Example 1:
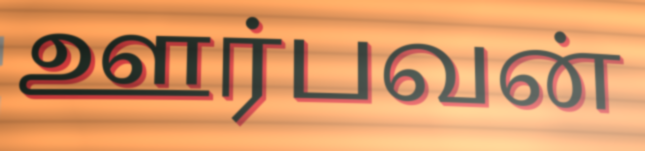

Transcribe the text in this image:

ஊர்பவன்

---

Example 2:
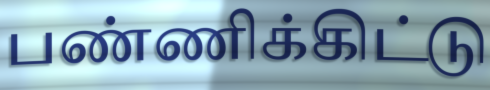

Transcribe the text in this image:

பண்ணிக்கிட்டு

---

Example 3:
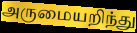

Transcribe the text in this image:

அருமையறிந்து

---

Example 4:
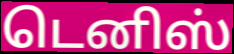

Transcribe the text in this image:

டெனிஸ்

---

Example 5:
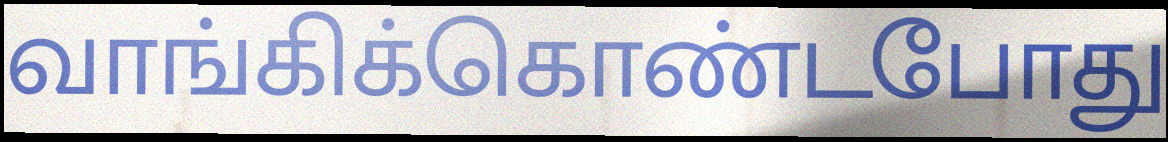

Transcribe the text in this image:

வாங்கிக்கொண்டபோது